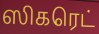
ஸிகரெட்